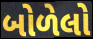
બોળેલો